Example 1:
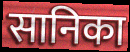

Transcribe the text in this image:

सानिका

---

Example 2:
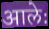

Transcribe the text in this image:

आलेः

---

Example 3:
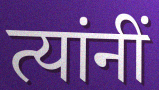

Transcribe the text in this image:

त्यांनीं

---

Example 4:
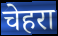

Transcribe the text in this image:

चेहरा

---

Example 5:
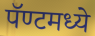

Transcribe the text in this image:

पॅण्टमध्ये